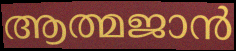
ആത്മജാൻ